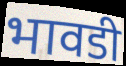
भावडी